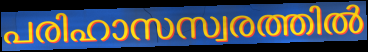
പരിഹാസസ്വരത്തിൽ